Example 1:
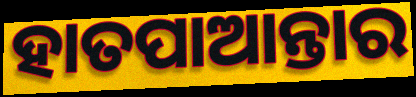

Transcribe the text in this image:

ହାତପାଆନ୍ତାର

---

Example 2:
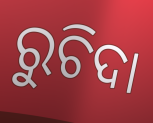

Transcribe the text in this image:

ରୁଚିଦା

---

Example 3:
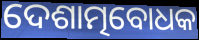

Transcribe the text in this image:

ଦେଶାତ୍ମବୋଧକ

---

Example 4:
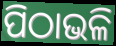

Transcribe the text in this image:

ପିଠାଭଳି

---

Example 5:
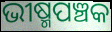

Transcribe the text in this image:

ଭୀଷ୍ମପଞ୍ଚକ